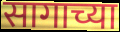
सागाच्या